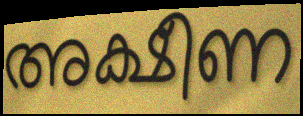
അക്ഷീണ